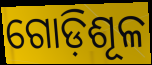
ଗୋଡ଼ିଶୂଳ